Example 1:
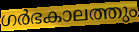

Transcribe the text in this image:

ഗർഭകാലത്തും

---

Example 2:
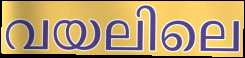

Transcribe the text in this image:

വയലിലെ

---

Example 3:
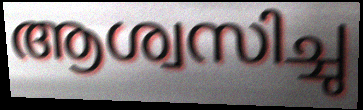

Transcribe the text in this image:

ആശ്വസിച്ചു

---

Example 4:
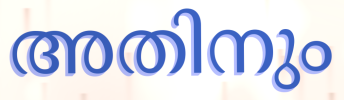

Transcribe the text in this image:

അതിനും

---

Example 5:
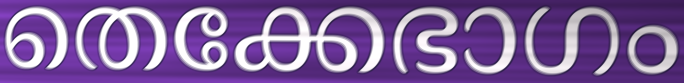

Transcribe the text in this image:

തെക്കേഭാഗം